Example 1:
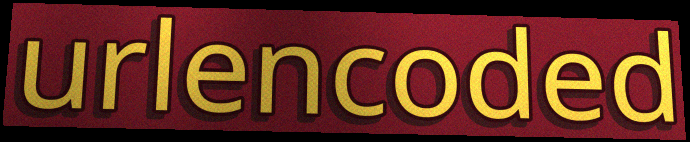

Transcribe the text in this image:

urlencoded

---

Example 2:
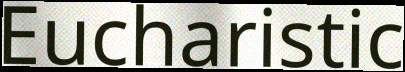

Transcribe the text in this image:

Eucharistic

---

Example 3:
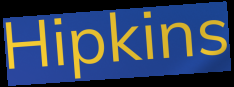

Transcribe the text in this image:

Hipkins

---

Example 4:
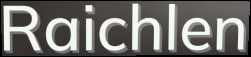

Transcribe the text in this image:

Raichlen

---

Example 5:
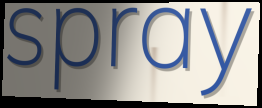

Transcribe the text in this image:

spray